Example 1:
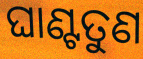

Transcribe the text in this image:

ଘାଣ୍ଟତୁଣ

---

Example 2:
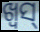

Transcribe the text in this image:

ଖ୍ୱସ୍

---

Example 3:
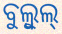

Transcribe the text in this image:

ବୁଲ୍ବୁଲ୍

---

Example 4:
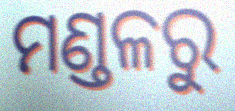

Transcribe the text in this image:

ମଣ୍ଡଳରୁ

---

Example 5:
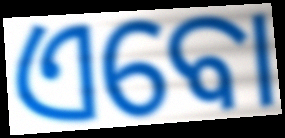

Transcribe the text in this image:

ଏବୋ